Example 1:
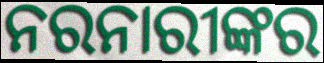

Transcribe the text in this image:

ନରନାରୀଙ୍କର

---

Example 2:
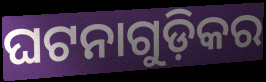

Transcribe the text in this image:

ଘଟନାଗୁଡ଼ିକର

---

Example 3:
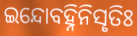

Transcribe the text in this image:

ଇନ୍ଦୋବହ୍ନିନିସୃତିଃ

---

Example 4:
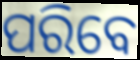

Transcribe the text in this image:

ପରିବେ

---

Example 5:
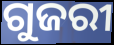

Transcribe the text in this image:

ଗୁଜରୀ